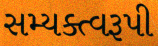
સમ્યક્ત્વરૂપી